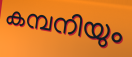
കമ്പനിയും